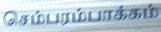
செம்பரம்பாக்கம்